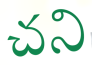
చని